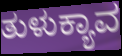
ತುಳುಕ್ಯಾವ